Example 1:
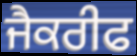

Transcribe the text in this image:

ਜੈਕਰੀਫ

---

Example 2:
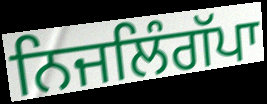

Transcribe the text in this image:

ਨਿਜਲਿੰਗੱਪਾ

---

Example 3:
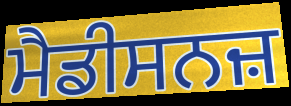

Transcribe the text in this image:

ਮੈਡੀਸਨਜ਼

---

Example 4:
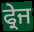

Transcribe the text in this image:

ਫ੍ਰੇਜ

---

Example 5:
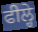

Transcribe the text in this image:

ਫੀਲ੍ਹੇ